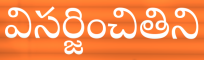
విసర్జించితిని